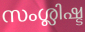
സംശ്ലിഷ്ട